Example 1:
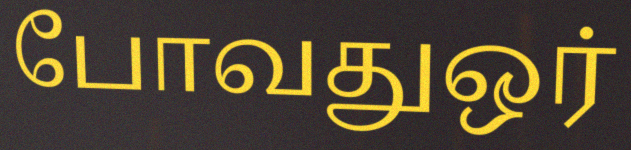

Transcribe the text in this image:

போவதுஒர்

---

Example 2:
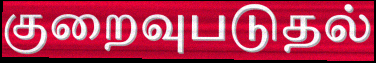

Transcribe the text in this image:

குறைவுபடுதல்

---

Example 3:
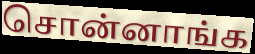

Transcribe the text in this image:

சொன்னாங்க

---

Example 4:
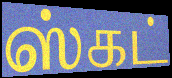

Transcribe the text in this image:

ஸ்கட்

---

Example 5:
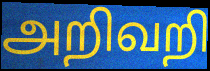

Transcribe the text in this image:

அறிவறி